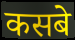
कसबे